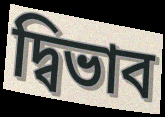
দ্বিভাব